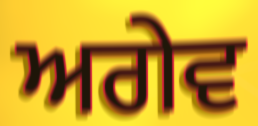
ਅਗੇਵ